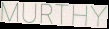
MURTHY